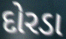
દોરડા